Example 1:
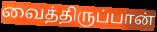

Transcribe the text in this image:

வைத்திருப்பான்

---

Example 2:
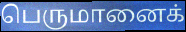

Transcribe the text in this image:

பெருமானைக்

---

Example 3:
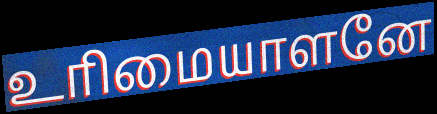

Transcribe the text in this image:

உரிமையாளனே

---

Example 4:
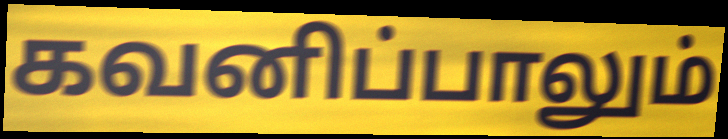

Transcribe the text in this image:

கவனிப்பாலும்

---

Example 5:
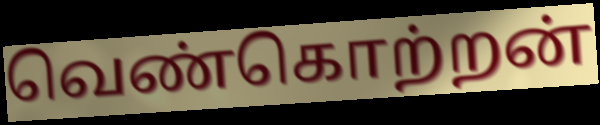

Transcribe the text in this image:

வெண்கொற்றன்